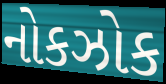
નોકઝોક